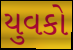
યુવકો